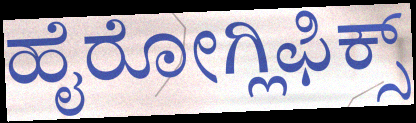
ಹೈರೋಗ್ಲಿಫಿಕ್ಸ್